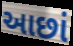
આછાં